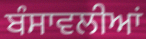
ਬੰਸਾਵਲੀਆਂ